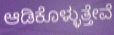
ಆಡಿಕೊಳ್ಳುತ್ತೇವೆ